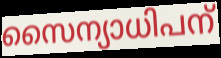
സൈന്യാധിപന്